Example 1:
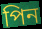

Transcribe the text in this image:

পিন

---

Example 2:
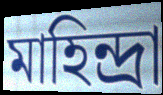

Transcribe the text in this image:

মাহিন্দ্রা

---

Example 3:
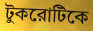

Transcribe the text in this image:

টুকরোটিকে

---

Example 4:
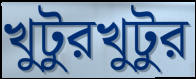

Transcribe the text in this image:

খুটুরখুটুর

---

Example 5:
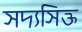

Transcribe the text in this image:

সদ্যসিক্ত